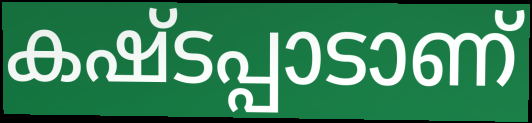
കഷ്ടപ്പാടാണ്